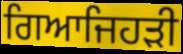
ਗਿਆਜਿਹੜੀ